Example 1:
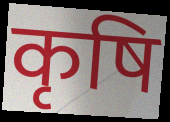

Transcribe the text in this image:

कृषि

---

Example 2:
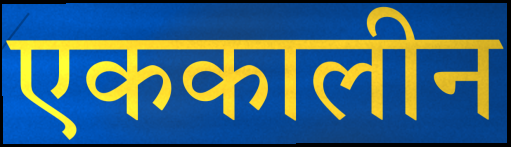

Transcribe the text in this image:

एककालीन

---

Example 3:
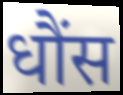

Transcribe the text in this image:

धौंस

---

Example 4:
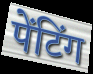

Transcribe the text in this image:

पेंटिंग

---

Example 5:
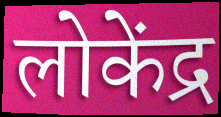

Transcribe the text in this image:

लोकेंद्र